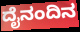
ದೈನಂದಿನ